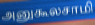
அனுகூலசாமி